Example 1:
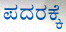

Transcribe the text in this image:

ಪದರಕ್ಕೆ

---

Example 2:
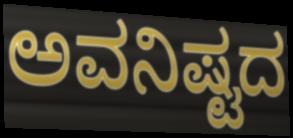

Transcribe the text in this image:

ಅವನಿಷ್ಟದ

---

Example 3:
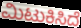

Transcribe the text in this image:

ಮಿಟುಕಿಸಿದೆ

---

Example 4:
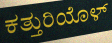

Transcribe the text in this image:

ಕತ್ತುರಿಯೊಳ್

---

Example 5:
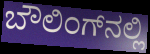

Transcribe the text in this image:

ಬೌಲಿಂಗ್‌ನಲ್ಲಿ